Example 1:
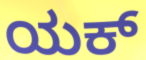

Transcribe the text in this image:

ಯಕ್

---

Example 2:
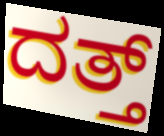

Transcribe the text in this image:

ದತ್ತ್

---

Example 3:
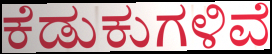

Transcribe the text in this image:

ಕೆಡುಕುಗಳಿವೆ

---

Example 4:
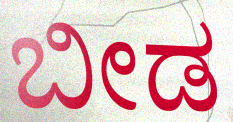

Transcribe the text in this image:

ಬೀಡ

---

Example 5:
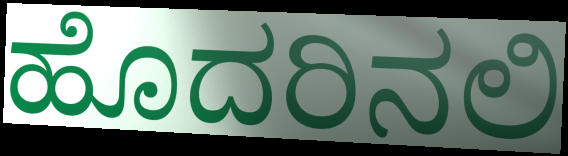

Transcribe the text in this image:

ಹೊದರಿನಲಿ